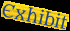
Exhibit